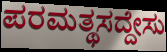
ಪರಮತ್ಥಸದ್ದೇಸು